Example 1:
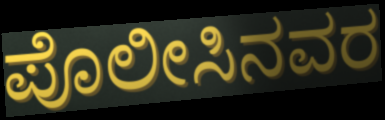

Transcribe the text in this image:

ಪೊಲೀಸಿನವರ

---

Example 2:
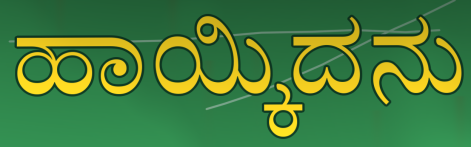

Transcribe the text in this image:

ಹಾಯ್ಕಿದನು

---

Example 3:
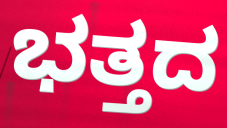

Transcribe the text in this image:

ಭತ್ತದ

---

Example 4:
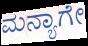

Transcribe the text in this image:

ಮನ್ಯಾಗೇ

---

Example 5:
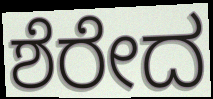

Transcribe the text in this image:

ಶೆರೇದ